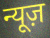
न्यूज़